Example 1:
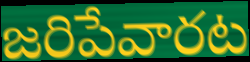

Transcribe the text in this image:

జరిపేవారట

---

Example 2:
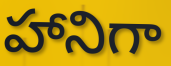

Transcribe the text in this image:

హానిగా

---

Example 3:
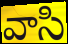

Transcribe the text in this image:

వాసి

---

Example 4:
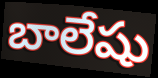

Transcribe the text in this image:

బాలేషు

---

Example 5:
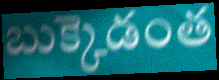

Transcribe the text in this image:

బుక్కెడంత